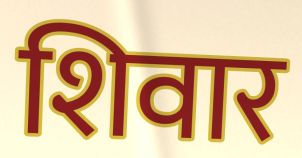
शिवार